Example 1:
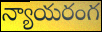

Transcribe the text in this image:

న్యాయరంగ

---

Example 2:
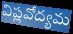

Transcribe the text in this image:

విప్లవోద్యమ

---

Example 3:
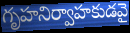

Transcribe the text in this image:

గృహనిర్వాహకుడవై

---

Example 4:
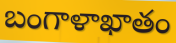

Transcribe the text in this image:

బంగాళాఖాతం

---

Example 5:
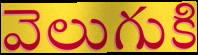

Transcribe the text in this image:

వెలుగుకి